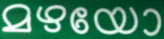
മഴയോ